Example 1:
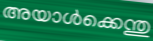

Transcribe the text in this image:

അയാൾക്കെന്തു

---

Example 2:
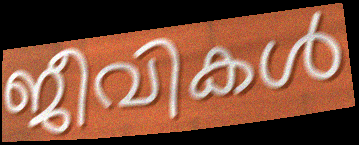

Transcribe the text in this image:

ജീവികൾ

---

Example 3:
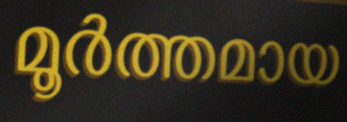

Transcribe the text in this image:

മൂർത്തമായ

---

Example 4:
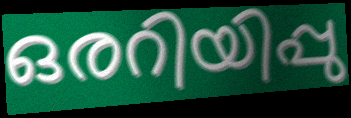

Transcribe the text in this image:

ഒരറിയിപ്പു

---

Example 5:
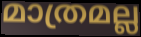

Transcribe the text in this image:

മാത്രമല്ല